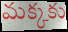
మక్కకు